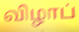
விழாப்